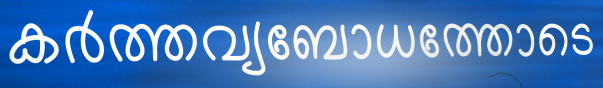
കർത്തവ്യബോധത്തോടെ